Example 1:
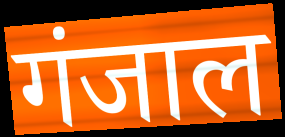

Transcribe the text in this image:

गंजाल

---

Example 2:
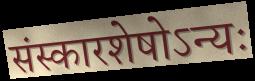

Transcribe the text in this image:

संस्कारशेषोऽन्यः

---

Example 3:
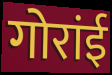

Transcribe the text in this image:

गोरांई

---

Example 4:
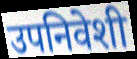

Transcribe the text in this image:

उपनिवेशी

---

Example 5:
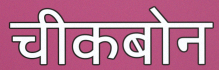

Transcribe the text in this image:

चीकबोन